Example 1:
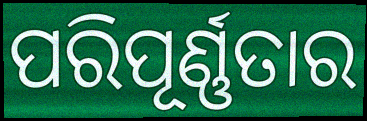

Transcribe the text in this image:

ପରିପୂର୍ଣ୍ଣତାର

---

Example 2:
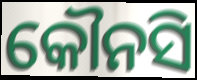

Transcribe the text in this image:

କୌନସି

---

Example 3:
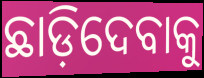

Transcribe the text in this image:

ଛାଡ଼ିଦେବାକୁ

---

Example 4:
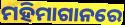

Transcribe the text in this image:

ମହିମାଗାନରେ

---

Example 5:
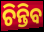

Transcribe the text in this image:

ଚିନ୍ତିବ